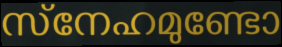
സ്‌നേഹമുണ്ടോ